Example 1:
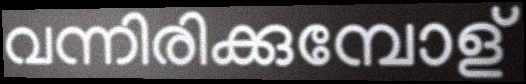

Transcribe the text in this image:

വന്നിരിക്കുമ്പോള്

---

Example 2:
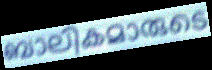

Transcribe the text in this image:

ബാലികമാരുടെ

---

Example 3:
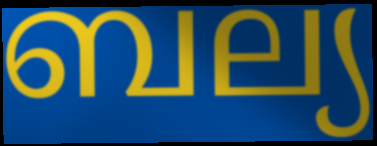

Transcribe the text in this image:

ബല്യ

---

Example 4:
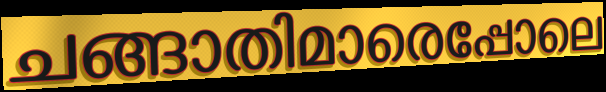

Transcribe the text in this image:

ചങ്ങാതിമാരെപ്പോലെ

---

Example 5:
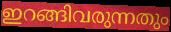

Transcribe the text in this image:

ഇറങ്ങിവരുന്നതും